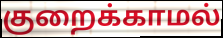
குறைக்காமல்